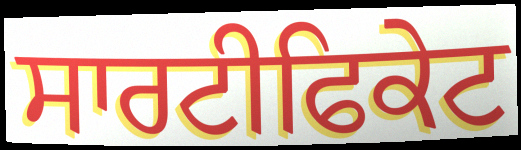
ਸਾਰਟੀਫਿਕੇਟ